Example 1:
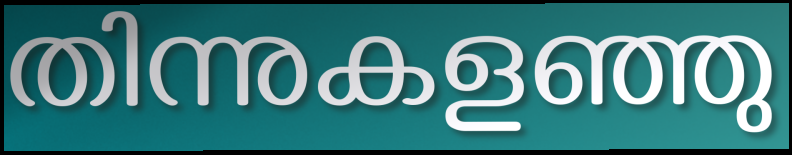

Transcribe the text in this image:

തിന്നുകളഞ്ഞു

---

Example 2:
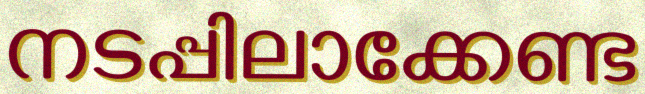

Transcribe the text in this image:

നടപ്പിലാക്കേണ്ട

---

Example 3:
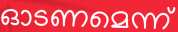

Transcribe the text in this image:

ഓടണമെന്ന്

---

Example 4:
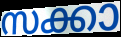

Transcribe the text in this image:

സക്കാ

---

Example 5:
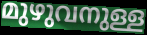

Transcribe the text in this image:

മുഴുവനുള്ള